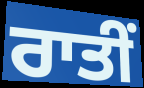
ਰਾਤੀਂ